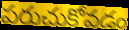
పరుచుకోవడం